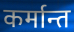
कर्मान्त